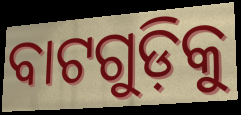
ବାଟଗୁଡ଼ିକୁ